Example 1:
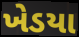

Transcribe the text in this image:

ખેડયા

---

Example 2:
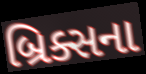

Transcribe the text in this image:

બ્રિક્સના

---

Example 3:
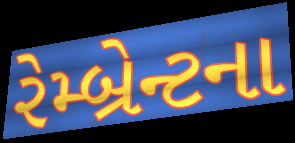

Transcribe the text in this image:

રેમ્બ્રેન્ટના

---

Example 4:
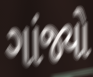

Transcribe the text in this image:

ગાંજ્યો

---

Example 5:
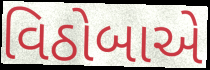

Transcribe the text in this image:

વિઠોબાએ